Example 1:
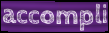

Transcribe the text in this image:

accompli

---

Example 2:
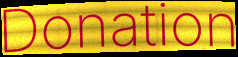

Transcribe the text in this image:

Donation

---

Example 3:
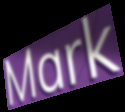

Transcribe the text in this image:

Mark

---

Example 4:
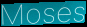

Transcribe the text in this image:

Moses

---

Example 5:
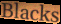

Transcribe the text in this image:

Blacks